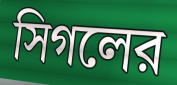
সিগলের